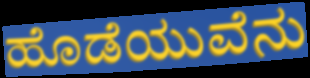
ಹೊಡೆಯುವೆನು